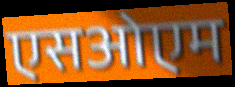
एसओएम